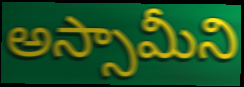
అస్సామీని